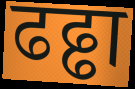
ढढ्ढा